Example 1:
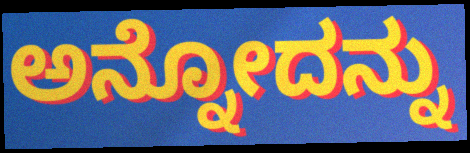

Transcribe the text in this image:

ಅನ್ನೋದನ್ನು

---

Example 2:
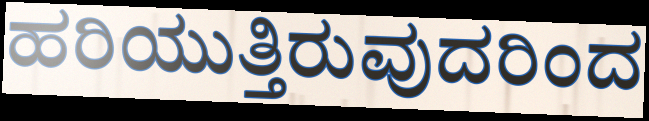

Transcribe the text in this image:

ಹರಿಯುತ್ತಿರುವುದರಿಂದ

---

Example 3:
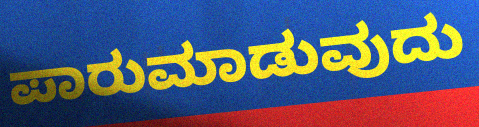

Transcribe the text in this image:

ಪಾರುಮಾಡುವುದು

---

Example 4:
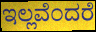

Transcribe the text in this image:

ಇಲ್ಲವೆಂದರೆ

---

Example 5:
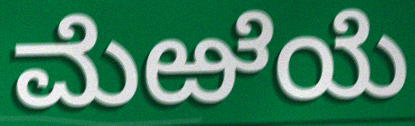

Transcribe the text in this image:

ಮೆಱೆಯೆ